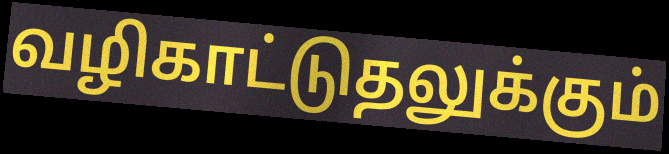
வழிகாட்டுதலுக்கும்